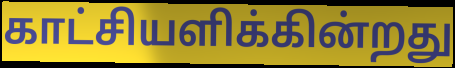
காட்சியளிக்கின்றது